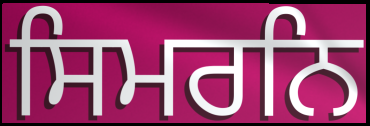
ਸਿਮਰਨਿ